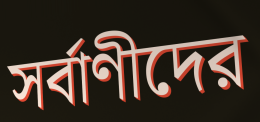
সর্বাণীদের